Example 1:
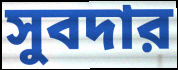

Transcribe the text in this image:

সুবদার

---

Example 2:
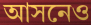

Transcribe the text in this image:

আসনেও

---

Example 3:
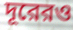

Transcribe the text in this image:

দূরেরও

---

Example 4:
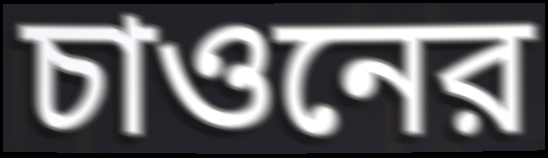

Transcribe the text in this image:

চাওনের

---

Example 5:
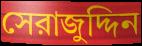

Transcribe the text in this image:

সেরাজুদ্দিন